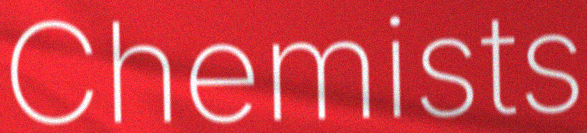
Chemists